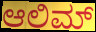
ಆಲಿಮ್